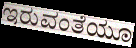
ಇರುವಂತೆಯೂ